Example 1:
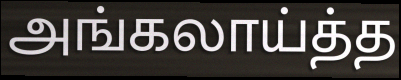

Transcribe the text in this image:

அங்கலாய்த்த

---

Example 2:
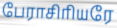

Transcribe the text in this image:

பேராசிரியரே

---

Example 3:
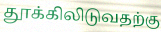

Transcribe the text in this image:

தூக்கிலிடுவதற்கு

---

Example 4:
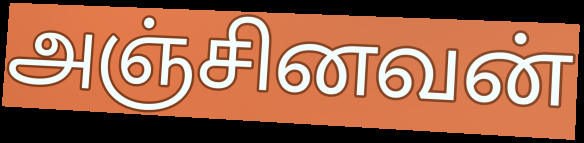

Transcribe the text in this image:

அஞ்சினவன்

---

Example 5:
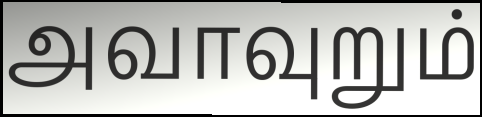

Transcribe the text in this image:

அவாவுறும்